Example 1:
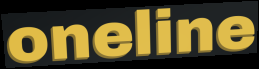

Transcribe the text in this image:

oneline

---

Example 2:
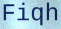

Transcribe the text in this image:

Fiqh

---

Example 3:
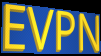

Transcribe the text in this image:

EVPN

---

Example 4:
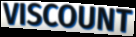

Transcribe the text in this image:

VISCOUNT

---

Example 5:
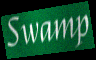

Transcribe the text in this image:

Swamp